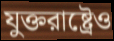
যুক্তরাষ্ট্রেও